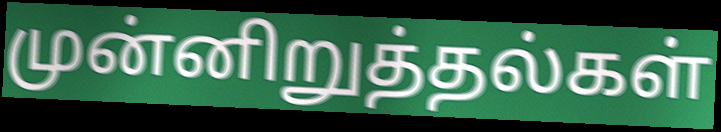
முன்னிறுத்தல்கள்